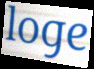
loge